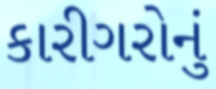
કારીગરોનું